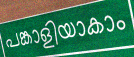
പങ്കാളിയാകാം